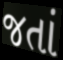
જતાં